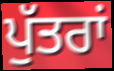
ਪੁੱਤਰਾਂ